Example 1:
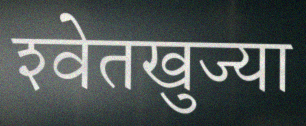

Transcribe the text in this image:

श्वेतखुज्या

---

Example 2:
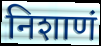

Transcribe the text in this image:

निशाणं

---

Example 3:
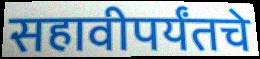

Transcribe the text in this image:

सहावीपर्यंतचे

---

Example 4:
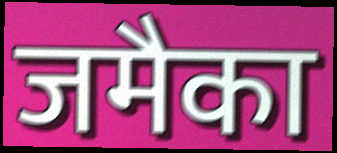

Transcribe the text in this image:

जमैका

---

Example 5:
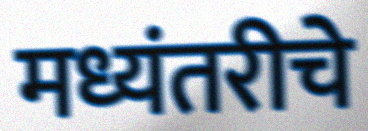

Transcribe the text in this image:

मध्यंतरीचे